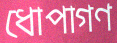
ধোপাগণ